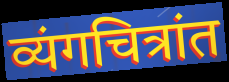
व्यंगचित्रांत